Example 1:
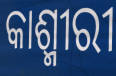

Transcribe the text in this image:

କାଶ୍ମୀରୀ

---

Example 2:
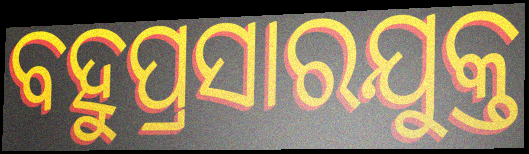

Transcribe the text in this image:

ବହୁପ୍ରସାରଯୁକ୍ତ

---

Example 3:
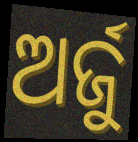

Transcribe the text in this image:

ଅର୍ଜୁ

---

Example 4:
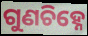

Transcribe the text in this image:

ଗୁଣଚିହ୍ନେ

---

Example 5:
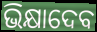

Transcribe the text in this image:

ଭିକ୍ଷାଦେବ